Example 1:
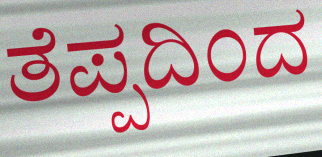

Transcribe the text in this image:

ತೆಪ್ಪದಿಂದ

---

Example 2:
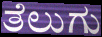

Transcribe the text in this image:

ತೆಲುಗು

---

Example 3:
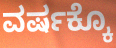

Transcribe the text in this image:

ವರ್ಷಕ್ಕೊ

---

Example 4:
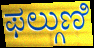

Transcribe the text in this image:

ಫಲ್ಗುಣಿ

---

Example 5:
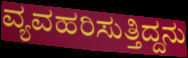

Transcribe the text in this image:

ವ್ಯವಹರಿಸುತ್ತಿದ್ದನು